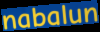
nabalun